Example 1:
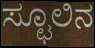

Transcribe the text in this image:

ಸ್ಟೂಲಿನ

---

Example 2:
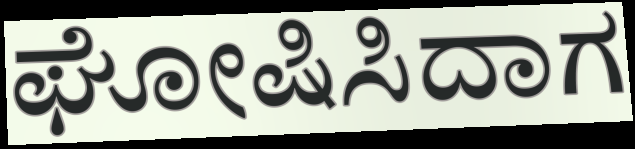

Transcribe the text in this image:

ಘೋಷಿಸಿದಾಗ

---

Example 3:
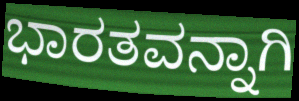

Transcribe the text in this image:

ಭಾರತವನ್ನಾಗಿ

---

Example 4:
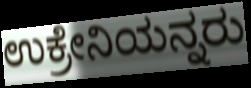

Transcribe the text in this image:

ಉಕ್ರೇನಿಯನ್ನರು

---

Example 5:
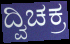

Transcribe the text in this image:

ದ್ವಿಚಕ್ರ